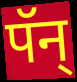
पॅन्